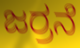
ಜರ್ರನೆ